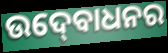
ଉଦ୍‍ବୋଧନର